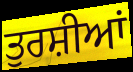
ਤੁਰਸ਼ੀਆਂ